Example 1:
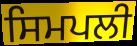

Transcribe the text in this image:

ਸਿਮਪਲੀ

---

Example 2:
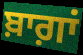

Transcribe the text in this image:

ਬ਼ਾਗ਼ਾਂ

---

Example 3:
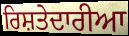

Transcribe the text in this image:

ਰਿਸ਼ਤੇਦਾਰੀਆ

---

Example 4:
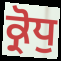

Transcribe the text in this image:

ਕ੍ਰੋਧੁ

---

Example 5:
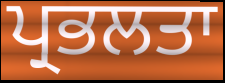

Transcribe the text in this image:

ਪ੍ਰਭਲਤਾ